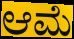
ಆಮೆ